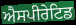
ਐਸਪੀਰੇਟਿਡ